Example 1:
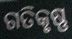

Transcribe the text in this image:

ଗତିକୃଷ୍ଣ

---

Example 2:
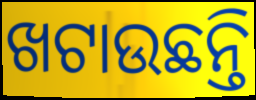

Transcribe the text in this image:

ଖଟାଉଛନ୍ତି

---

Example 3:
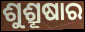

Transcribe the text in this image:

ଶୁଶ୍ରୂଷାର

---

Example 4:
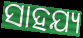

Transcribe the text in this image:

ସାହଯ୍ୟ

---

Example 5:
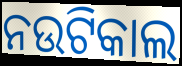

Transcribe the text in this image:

ନଉଟିକାଲ